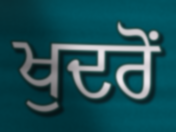
ਖੁਦਰੋਂ